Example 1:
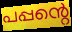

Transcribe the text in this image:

പപ്പന്റെ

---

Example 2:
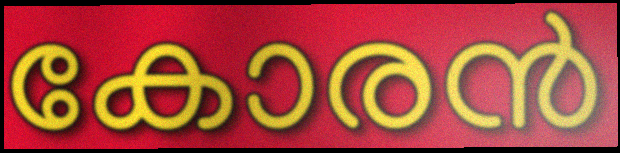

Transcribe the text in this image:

കോരൻ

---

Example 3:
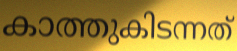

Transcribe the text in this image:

കാത്തുകിടന്നത്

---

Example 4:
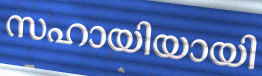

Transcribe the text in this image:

സഹായിയായി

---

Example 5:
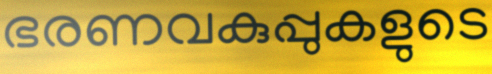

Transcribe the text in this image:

ഭരണവകുപ്പുകളുടെ